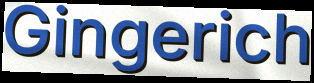
Gingerich